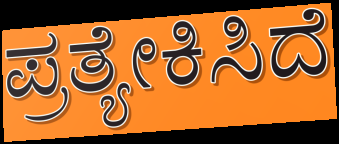
ಪ್ರತ್ಯೇಕಿಸಿದೆ